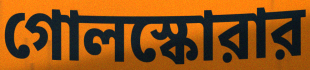
গোলস্কোরার